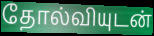
தோல்வியுடன்